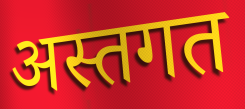
अस्तगत